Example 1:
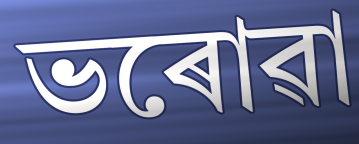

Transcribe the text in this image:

ভৰোৱা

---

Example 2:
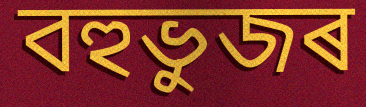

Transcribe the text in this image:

বহুভুজৰ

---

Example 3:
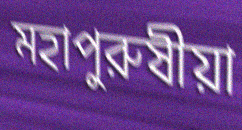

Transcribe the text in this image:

মহাপুৰুষীয়া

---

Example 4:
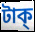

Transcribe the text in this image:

টাক্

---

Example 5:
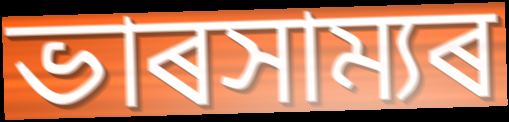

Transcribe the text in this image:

ভাৰসাম্যৰ